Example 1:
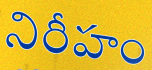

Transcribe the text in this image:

నిరీహం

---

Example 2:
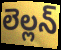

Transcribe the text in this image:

లెల్లన్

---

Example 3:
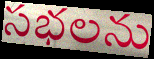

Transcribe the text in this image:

సభలను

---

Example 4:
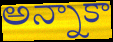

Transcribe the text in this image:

అన్నాకా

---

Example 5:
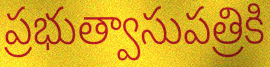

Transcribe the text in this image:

ప్రభుత్వాసుపత్రికి